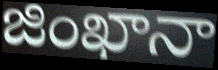
జింఖానా